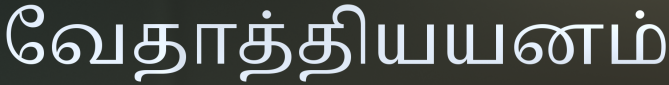
வேதாத்தியயனம்